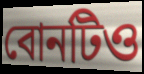
বোনটিও